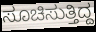
ಸೂಚಿಸುತ್ತಿದ್ದ